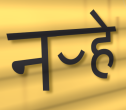
नऱ्हे